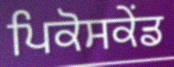
ਪਿਕੋਸਕੇਂਡ